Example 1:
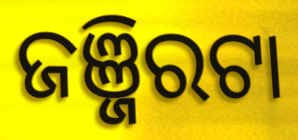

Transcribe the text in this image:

ଜଞ୍ଜିରଟା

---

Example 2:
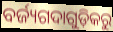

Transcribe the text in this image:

ବର୍ଜ୍ୟଗଦାଗୁଡ଼ିକରୁ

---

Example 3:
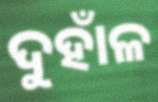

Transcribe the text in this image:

ଦୁହାଁଳ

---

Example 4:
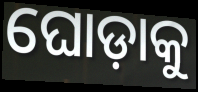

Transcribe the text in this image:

ଘୋଡ଼ାକୁ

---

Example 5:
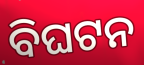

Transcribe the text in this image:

ବିଘଟନ